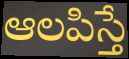
ఆలపిస్తే